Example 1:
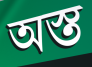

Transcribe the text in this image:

অস্ত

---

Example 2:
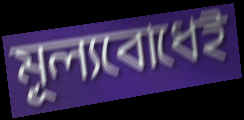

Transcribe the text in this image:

মূল্যবোধেই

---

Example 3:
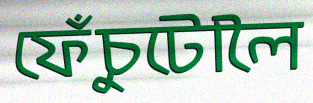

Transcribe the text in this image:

ফেঁচুটোলৈ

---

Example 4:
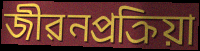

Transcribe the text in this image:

জীৱনপ্ৰক্ৰিয়া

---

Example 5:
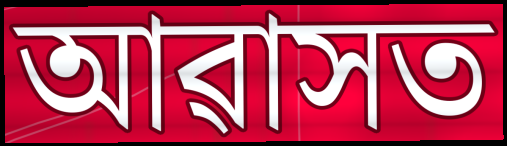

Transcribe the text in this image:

আৱাসত